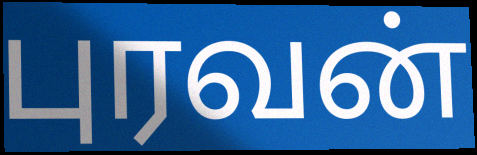
புரவன்